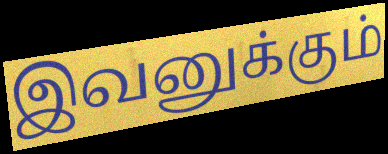
இவனுக்கும்